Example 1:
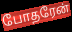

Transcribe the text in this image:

போதரேன்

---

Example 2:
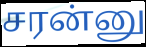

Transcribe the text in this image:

சரன்னு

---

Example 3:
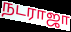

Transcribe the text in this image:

நடராஜா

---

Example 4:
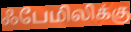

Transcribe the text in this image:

ஃபேமிலிக்கு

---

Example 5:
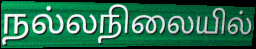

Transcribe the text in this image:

நல்லநிலையில்